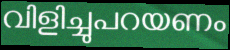
വിളിച്ചുപറയണം